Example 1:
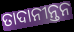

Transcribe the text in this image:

ତାଦାନୀନ୍ତନ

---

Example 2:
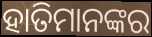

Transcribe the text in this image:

ହାତିମାନଙ୍କର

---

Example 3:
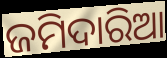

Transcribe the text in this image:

ଜମିଦାରିଆ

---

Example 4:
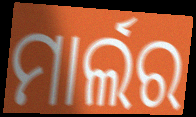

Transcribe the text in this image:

ମାର୍ଲର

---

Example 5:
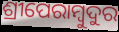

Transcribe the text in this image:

ଶ୍ରୀପେରାମ୍ବୁଦୁର